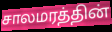
சாலமரத்தின்